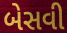
બેસવી